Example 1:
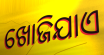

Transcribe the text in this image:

ଖୋଜିଯାଏ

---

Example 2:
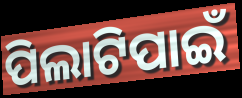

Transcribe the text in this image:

ପିଲାଟିପାଇଁ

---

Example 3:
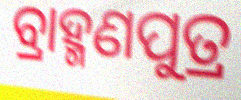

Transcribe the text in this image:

ବ୍ରାହ୍ମଣପୁତ୍ର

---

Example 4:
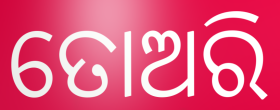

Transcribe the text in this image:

ତୋଅରି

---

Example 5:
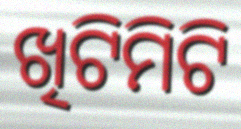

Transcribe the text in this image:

ଖିଟିମିଟି